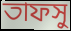
তাফসু